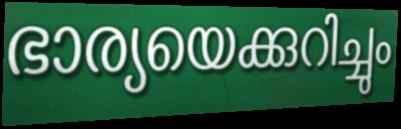
ഭാര്യയെക്കുറിച്ചും